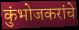
कुंभोजकरांचे